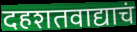
दहशतवाद्याचं